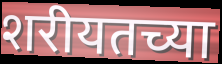
शरीयतच्या